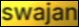
swajan